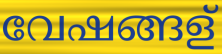
വേഷങ്ങള്